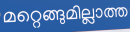
മറ്റെങ്ങുമില്ലാത്ത